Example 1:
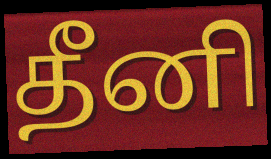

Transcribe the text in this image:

தீனி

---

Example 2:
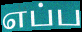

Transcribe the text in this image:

எப்ப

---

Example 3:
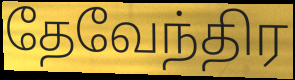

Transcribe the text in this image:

தேவேந்திர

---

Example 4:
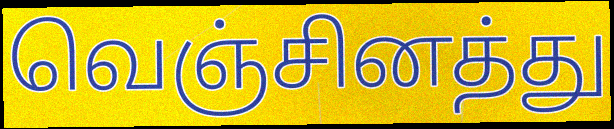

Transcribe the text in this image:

வெஞ்சினத்து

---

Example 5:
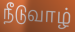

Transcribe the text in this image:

நீடுவாழ்